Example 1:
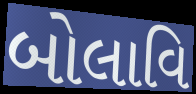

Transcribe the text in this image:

બોલાવિ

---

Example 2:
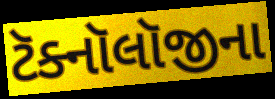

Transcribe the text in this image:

ટૅક્નૉલૉજીના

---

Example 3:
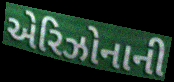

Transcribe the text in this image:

એરિઝોનાની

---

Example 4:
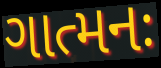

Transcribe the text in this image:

ગાત્મનઃ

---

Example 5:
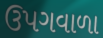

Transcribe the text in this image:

ઉપગવાળા